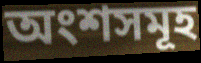
অংশসমূহ